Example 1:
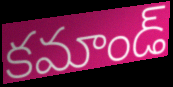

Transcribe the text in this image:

కమాండ్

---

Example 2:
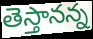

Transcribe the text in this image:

తెస్తానన్న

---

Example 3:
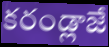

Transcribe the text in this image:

కరండ్లాజే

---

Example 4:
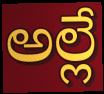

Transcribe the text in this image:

అల్లే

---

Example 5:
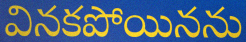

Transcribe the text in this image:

వినకపోయినను